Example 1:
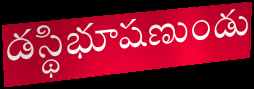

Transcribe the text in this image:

డస్థిభూషణుండు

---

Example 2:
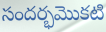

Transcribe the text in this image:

సందర్భమొకటి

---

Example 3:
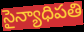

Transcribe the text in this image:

సైన్యాధిపతి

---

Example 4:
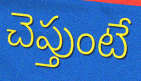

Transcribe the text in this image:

చెప్తుంటే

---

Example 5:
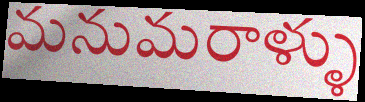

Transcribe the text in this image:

మనుమరాళ్ళు